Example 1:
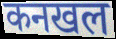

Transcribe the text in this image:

कनखल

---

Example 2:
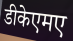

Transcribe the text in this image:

डीकेएमए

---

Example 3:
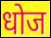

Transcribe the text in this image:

धोज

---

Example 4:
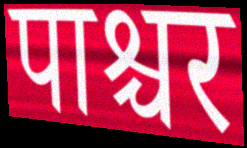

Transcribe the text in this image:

पाश्चर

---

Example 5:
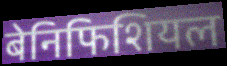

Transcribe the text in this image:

बेनिफिशियल